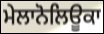
ਮੇਲਾਨੋਲਿਊਕਾ